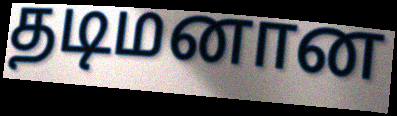
தடிமனான